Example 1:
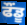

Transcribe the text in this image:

ਫੌਂਡੂ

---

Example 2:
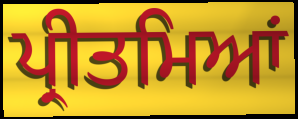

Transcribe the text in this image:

ਪ੍ਰੀਤਮਿਆਂ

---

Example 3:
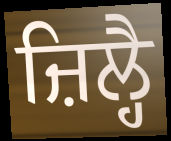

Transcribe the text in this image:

ਜ਼ਿਲ੍ਹੈ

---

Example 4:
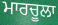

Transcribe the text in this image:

ਮਾਰਚੂਲਾ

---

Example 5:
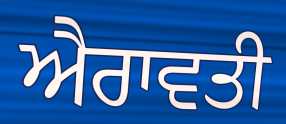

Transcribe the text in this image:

ਐਰਾਵਤੀ